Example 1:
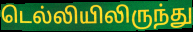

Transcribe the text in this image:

டெல்லியிலிருந்து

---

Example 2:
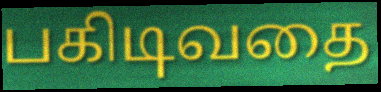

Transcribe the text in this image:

பகிடிவதை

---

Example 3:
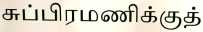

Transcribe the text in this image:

சுப்பிரமணிக்குத்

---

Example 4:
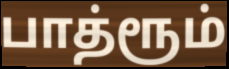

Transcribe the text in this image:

பாத்ரூம்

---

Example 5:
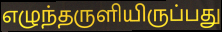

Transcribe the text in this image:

எழுந்தருளியிருப்பது